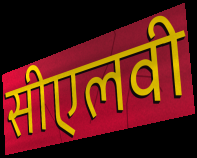
सीएलवी